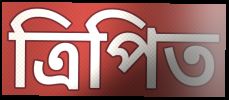
ত্রিপিত